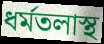
ধর্মতলাস্থ